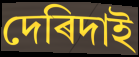
দেৰিদাই